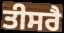
ਤੀਸਰੈ